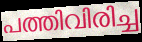
പത്തിവിരിച്ച